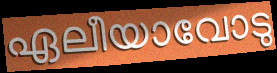
ഏലീയാവോടു